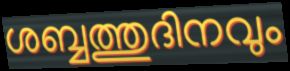
ശബ്ബത്തുദിനവും